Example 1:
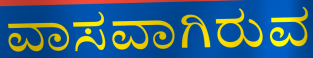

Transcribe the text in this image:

ವಾಸವಾಗಿರುವ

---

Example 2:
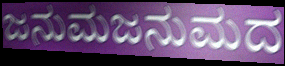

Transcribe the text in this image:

ಜನುಮಜನುಮದ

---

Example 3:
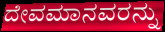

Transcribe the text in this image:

ದೇವಮಾನವರನ್ನು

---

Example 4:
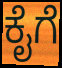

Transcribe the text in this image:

ಕೈಗೆ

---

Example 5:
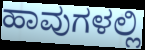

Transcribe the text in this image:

ಹಾವುಗಳಲ್ಲಿ